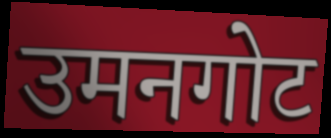
उमनगोट